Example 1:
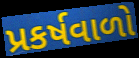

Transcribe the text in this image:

પ્રકર્ષવાળો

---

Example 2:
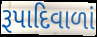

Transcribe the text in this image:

રૂપાદિવાળાં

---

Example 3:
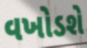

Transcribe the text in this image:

વખોડશે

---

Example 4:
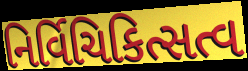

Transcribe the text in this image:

નિર્વિચિકિત્સત્વ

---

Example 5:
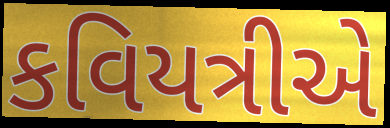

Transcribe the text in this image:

કવિયત્રીએ